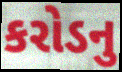
કરોડનુ